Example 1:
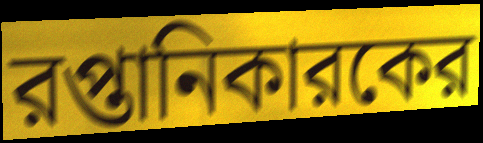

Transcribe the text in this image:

রপ্তানিকারকের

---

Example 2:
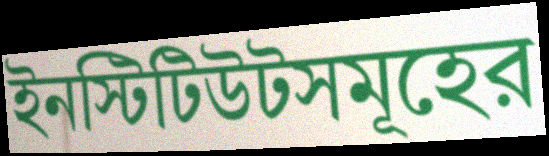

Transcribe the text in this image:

ইনস্টিটিউটসমূহের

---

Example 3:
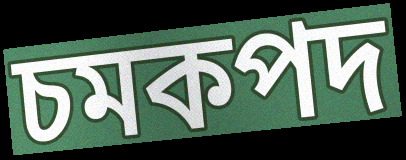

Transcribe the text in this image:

চমকপদ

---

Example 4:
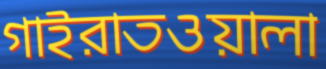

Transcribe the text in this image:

গাইরাতওয়ালা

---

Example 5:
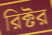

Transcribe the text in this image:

রিক্টর